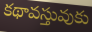
కథావస్తువుకు